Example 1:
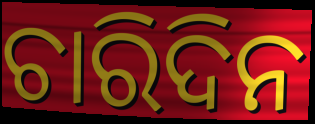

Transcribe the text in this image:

ଚାରିଦିନ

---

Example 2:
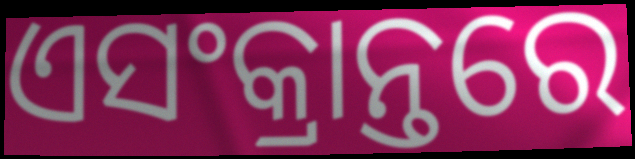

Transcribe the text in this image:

ଏସଂକ୍ରାନ୍ତରେ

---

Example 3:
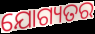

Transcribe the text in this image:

ଯୋଗ୍ୟତର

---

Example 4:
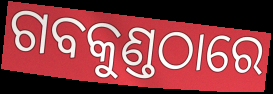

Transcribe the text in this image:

ଗବକୁଣ୍ଡଠାରେ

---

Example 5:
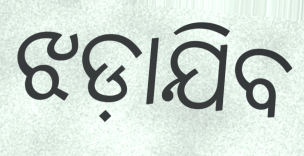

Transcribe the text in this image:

ଝଡ଼ାଯିବ